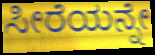
ಸೀರೆಯನ್ನೇ